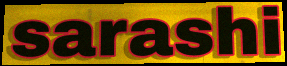
sarashi